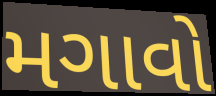
મગાવો